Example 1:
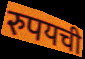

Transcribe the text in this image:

रुपयची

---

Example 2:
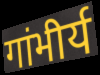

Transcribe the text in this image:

गांभीर्य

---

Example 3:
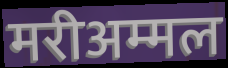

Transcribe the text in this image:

मरीअम्मल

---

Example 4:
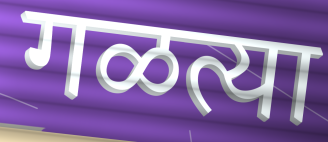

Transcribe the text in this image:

गळत्या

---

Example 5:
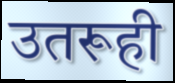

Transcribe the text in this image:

उतरूही